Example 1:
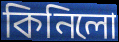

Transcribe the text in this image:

কিনিলো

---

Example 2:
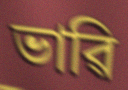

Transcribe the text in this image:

ভাৱি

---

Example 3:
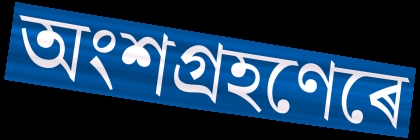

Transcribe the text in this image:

অংশগ্ৰহণেৰে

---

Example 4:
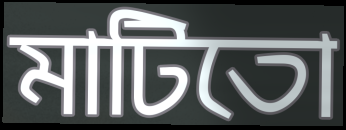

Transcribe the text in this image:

মাটিতো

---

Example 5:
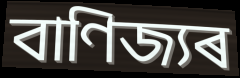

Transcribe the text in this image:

বাণিজ্যৰ